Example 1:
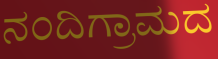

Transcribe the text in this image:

ನಂದಿಗ್ರಾಮದ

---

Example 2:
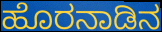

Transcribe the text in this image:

ಹೊರನಾಡಿನ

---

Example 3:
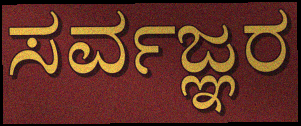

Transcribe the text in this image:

ಸರ್ವಜ್ಞರ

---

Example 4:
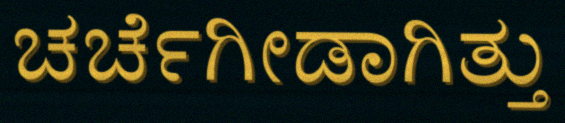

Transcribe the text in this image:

ಚರ್ಚೆಗೀಡಾಗಿತ್ತು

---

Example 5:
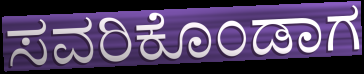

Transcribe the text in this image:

ಸವರಿಕೊಂಡಾಗ